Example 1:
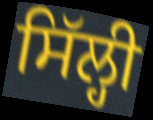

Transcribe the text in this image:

ਸਿੱਲ੍ਹੀ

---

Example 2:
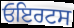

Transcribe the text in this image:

ਓਇਰਟਸ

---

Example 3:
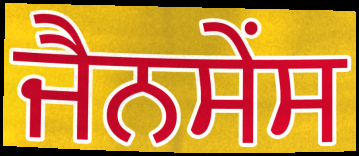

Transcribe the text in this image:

ਜੈਨਸੇਂਸ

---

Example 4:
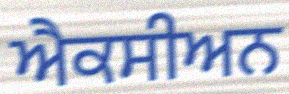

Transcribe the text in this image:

ਐਕਸੀਅਨ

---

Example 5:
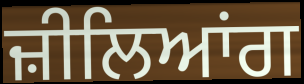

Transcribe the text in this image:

ਜ਼ੀਲਿਆਂਗ